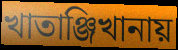
খাতাঞ্জিখানায়